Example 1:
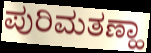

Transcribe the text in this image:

ಪುರಿಮತಣ್ಹಾ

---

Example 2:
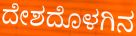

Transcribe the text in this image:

ದೇಶದೊಳಗಿನ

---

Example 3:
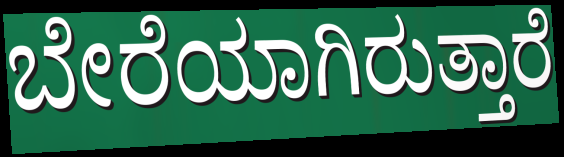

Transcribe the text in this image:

ಬೇರೆಯಾಗಿರುತ್ತಾರೆ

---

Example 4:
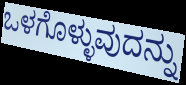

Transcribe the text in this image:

ಒಳಗೊಳ್ಳುವುದನ್ನು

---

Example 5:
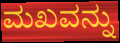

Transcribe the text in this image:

ಮಖವನ್ನು